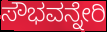
ಸೌಭವನ್ನೇರಿ